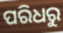
ପରିଧରୁ